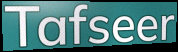
Tafseer